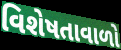
વિશેષતાવાળો